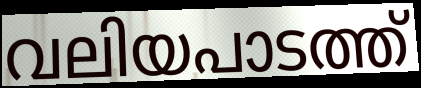
വലിയപാടത്ത്